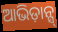
ଆଭିଡ଼ାନ୍ସ୍